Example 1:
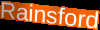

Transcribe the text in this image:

Rainsford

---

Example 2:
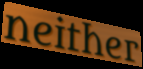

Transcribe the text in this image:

neither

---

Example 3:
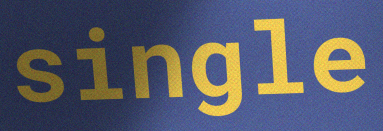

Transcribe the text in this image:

single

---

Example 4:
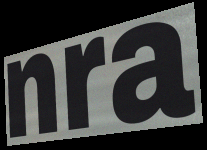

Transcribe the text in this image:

nra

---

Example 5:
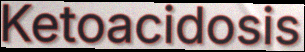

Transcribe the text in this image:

Ketoacidosis